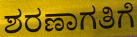
ಶರಣಾಗತಿಗೆ